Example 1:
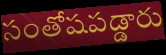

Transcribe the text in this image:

సంతోషపడ్డారు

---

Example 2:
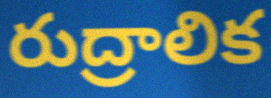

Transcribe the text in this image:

రుద్రాలిక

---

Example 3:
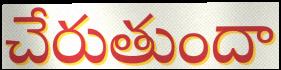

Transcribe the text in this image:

చేరుతుందా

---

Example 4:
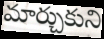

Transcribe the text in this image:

మార్చుకుని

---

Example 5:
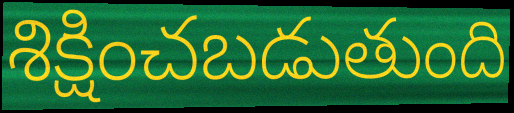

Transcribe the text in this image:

శిక్షించబడుతుంది